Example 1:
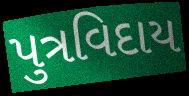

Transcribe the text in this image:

પુત્રવિદાય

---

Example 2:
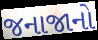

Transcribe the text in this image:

જનાજાનો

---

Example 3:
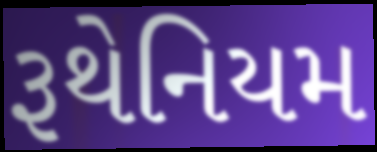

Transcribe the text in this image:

રૂથેનિયમ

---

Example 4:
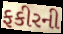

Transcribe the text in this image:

ફકીરની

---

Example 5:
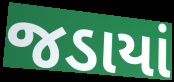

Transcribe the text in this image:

જડાયાં